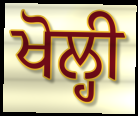
ਖੋਲ੍ਹੀ